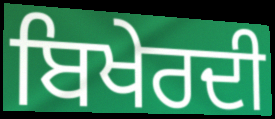
ਬਿਖੇਰਦੀ